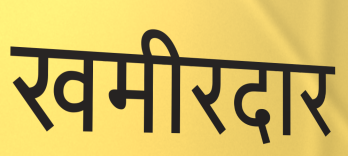
खमीरदार